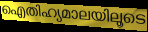
ഐതിഹ്യമാലയിലൂടെ